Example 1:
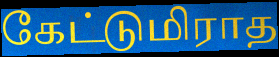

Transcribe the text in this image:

கேட்டுமிராத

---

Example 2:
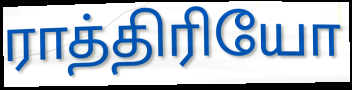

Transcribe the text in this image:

ராத்திரியோ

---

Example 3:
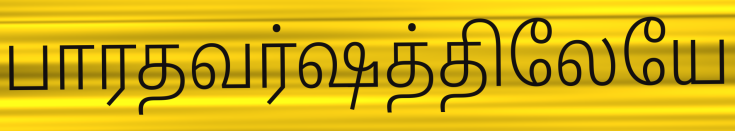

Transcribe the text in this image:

பாரதவர்ஷத்திலேயே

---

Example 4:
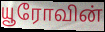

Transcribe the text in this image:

யூரோவின்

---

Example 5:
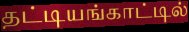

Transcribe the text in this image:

தட்டியங்காட்டில்